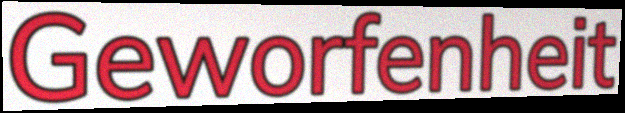
Geworfenheit